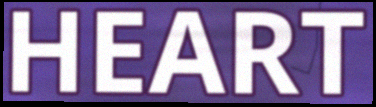
HEART